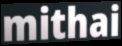
mithai